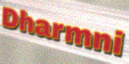
Dharmni